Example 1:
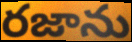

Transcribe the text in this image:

రజాను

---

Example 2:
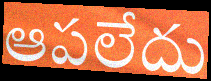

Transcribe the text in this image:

ఆపలేదు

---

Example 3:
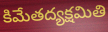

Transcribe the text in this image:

కిమేతద్యక్షమితి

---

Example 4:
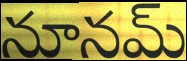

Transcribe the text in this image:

నూనమ్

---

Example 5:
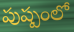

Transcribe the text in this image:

పుష్పంలో